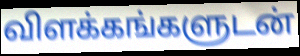
விளக்கங்களுடன்